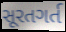
સૂરતગર્ત